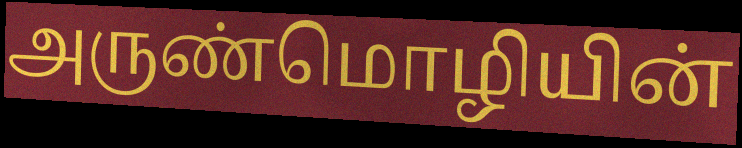
அருண்மொழியின்